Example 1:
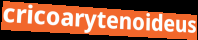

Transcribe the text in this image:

cricoarytenoideus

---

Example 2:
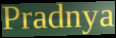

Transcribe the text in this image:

Pradnya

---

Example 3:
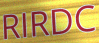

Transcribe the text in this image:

RIRDC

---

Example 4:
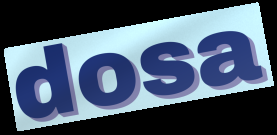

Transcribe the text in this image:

dosa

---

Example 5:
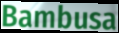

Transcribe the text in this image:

Bambusa